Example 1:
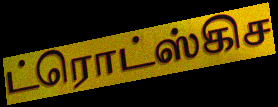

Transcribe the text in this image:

ட்ரொட்ஸ்கிச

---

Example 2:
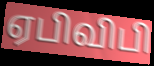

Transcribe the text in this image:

ஏபிவிபி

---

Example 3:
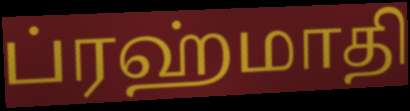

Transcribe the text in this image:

ப்ரஹ்மாதி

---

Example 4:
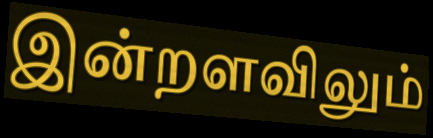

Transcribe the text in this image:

இன்றளவிலும்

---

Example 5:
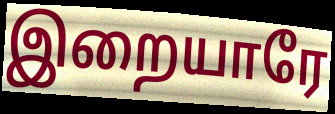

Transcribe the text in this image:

இறையாரே